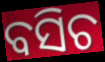
ବସିଚ